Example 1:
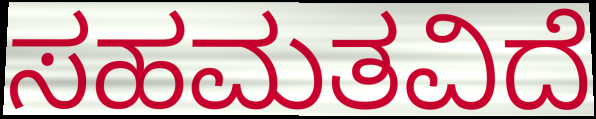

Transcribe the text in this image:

ಸಹಮತವಿದೆ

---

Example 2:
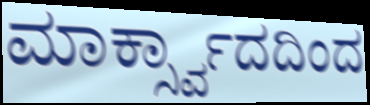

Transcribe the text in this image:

ಮಾರ್ಕ್ಸ್ವಾದದಿಂದ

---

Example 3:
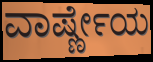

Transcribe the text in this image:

ವಾರ್ಷ್ಣೇಯ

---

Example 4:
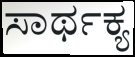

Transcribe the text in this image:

ಸಾರ್ಥಕ್ಯ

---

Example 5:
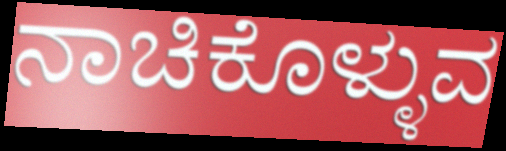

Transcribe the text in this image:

ನಾಚಿಕೊಳ್ಳುವ